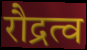
रौद्रत्व